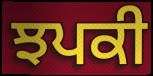
ਝਪਕੀ